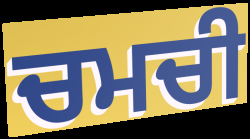
ਚਮਚੀ